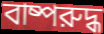
বাষ্পরুদ্ধ